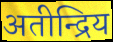
अतीन्द्रिय